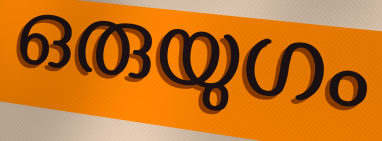
ഒരുയുഗം